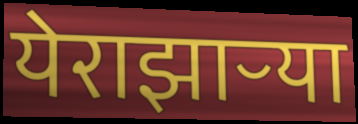
येराझाऱ्या